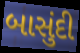
બાસુંદી